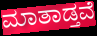
ಮಾತಾಡ್ತವೆ